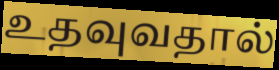
உதவுவதால்